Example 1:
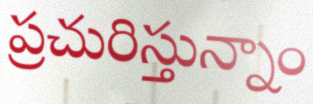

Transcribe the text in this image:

ప్రచురిస్తున్నాం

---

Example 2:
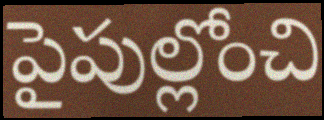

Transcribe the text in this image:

పైపుల్లోంచి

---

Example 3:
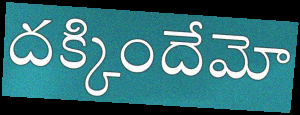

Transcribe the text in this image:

దక్కిందేమో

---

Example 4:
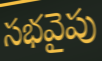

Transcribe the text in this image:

సభవైపు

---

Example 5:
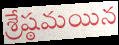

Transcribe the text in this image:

శ్రేష్ఠమయిన